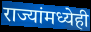
राज्यांमध्येही